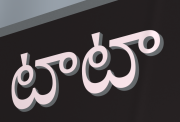
టాటా